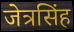
जेत्रसिंह